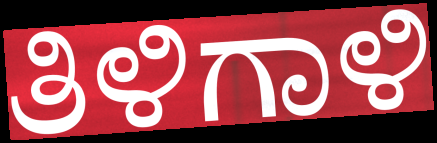
ತಿಳಿಗಾಳಿ